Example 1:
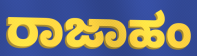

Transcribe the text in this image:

ರಾಜಾಹಂ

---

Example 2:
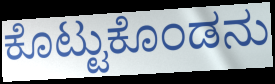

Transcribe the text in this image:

ಕೊಟ್ಟುಕೊಂಡನು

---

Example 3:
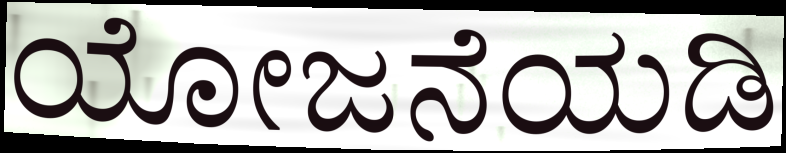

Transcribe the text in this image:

ಯೋಜನೆಯಡಿ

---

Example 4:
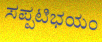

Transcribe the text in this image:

ಸಪ್ಪಟಿಭಯಂ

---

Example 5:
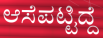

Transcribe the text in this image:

ಆಸೆಪಟ್ಟಿದ್ದೆ